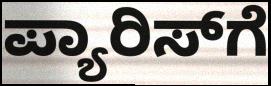
ಪ್ಯಾರಿಸ್‍ಗೆ